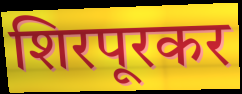
शिरपूरकर